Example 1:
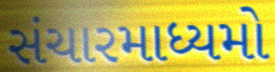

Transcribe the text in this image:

સંચારમાધ્યમો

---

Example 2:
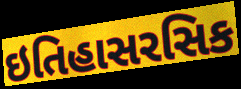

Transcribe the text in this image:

ઇતિહાસરસિક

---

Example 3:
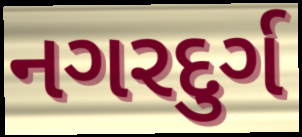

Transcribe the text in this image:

નગરદુર્ગ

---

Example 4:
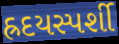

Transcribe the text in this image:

હ્રદયસ્પર્શી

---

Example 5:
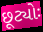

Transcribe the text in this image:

છૂટ્યોઃ